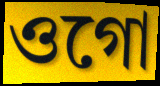
ওগো